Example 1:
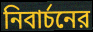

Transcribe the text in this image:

নিবার্চনের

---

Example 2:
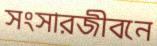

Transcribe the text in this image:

সংসারজীবনে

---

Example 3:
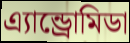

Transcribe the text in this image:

এ্যান্ড্রোমিডা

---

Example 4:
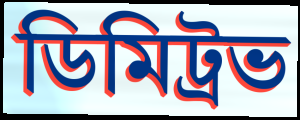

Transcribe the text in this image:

ডিমিট্রভ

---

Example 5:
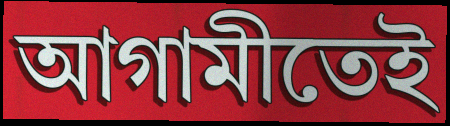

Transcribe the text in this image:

আগামীতেই